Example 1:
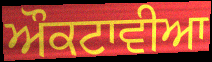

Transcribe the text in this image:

ਔਕਟਾਵੀਆ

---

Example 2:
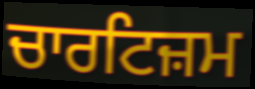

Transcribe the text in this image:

ਚਾਰਟਿਜ਼ਮ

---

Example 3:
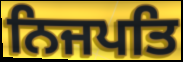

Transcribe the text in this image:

ਨਿਜਪਤਿ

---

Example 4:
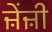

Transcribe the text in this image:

ਜ਼ੇਂਜ਼ੀ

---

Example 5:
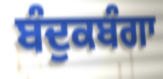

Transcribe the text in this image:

ਬੰਦੁਕਬੰਗਾ